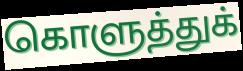
கொளுத்துக்